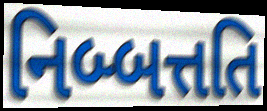
નિબ્બત્તતિ